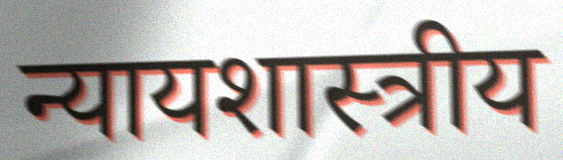
न्यायशास्त्रीय